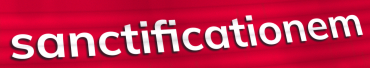
sanctificationem